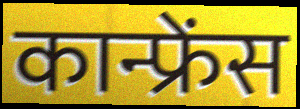
कान्फ्रेंस